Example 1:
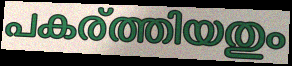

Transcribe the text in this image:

പകര്ത്തിയതും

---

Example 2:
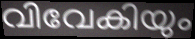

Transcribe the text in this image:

വിവേകിയും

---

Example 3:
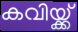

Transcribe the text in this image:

കവിയ്ക്ക്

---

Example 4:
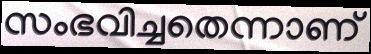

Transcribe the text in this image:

സംഭവിച്ചതെന്നാണ്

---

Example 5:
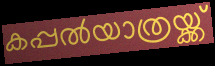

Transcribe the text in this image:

കപ്പൽയാത്രയ്ക്ക്